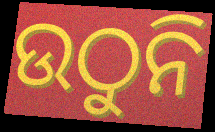
ଉଠୁନି